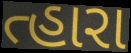
ત્હારા